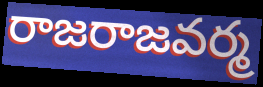
రాజరాజవర్మ